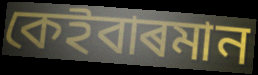
কেইবাৰমান